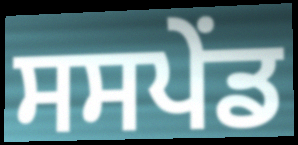
ਸਸਪੇੰਡ